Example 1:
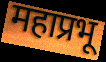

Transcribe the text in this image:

महाप्रभू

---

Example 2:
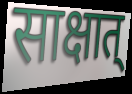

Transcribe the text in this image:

साक्षात्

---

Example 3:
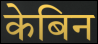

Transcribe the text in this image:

केबिन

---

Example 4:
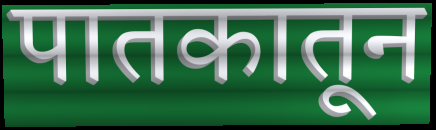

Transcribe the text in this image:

पातकातून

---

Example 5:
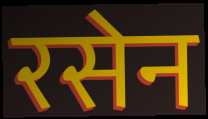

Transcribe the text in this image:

रसेन